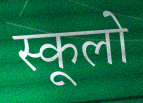
स्कूलो